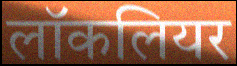
लॉकलियर